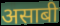
असाबी